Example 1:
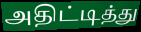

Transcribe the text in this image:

அதிட்டித்து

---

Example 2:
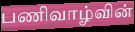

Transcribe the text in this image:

பணிவாழ்வின்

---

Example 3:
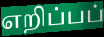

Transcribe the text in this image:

எறிப்பப்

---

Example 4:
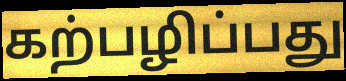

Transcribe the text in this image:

கற்பழிப்பது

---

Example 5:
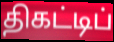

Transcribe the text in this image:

திகட்டிப்